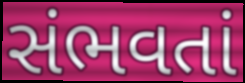
સંભવતાં